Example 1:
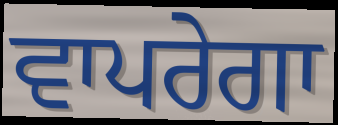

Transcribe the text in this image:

ਵਾਪਰੇਗਾ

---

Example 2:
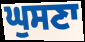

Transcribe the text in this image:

ਘੁਸਣਾ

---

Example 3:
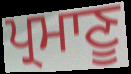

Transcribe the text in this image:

ਪ੍ਰਮਾਣੂ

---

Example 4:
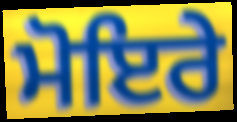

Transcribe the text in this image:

ਮੋਇਰੇ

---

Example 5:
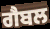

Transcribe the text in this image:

ਗੈਬਲ